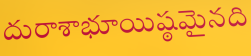
దురాశాభూయిష్ఠమైనది